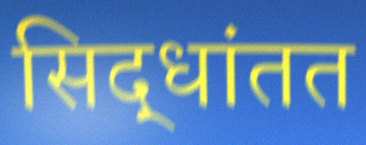
सिद्धांतत